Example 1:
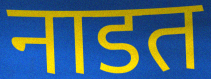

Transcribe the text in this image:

नाडत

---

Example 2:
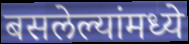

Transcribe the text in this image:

बसलेल्यांमध्ये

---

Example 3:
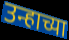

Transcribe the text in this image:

उन्हाच्या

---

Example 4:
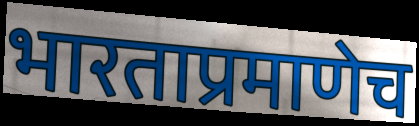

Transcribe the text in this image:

भारताप्रमाणेच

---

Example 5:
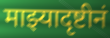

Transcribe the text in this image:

माझ्यादृष्टीनं